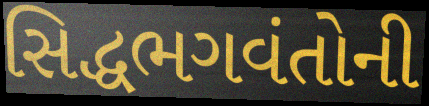
સિદ્ધભગવંતોની